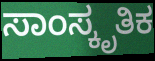
ಸಾಂಸ್ಕೃತಿಕ